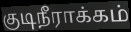
குடிநீராக்கம்